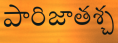
పారిజాతశ్చ